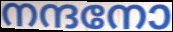
നന്ദനോ